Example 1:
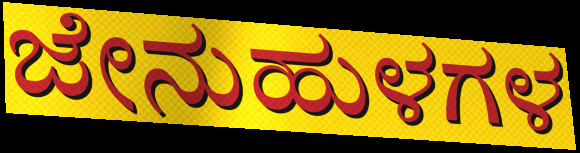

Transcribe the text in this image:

ಜೇನುಹುಳಗಳ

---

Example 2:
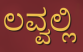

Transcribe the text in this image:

ಲವ್ವಲ್ಲಿ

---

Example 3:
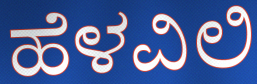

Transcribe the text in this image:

ಹೆಳವಿಲಿ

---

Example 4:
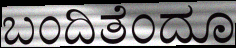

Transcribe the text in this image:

ಬಂದಿತೆಂದೂ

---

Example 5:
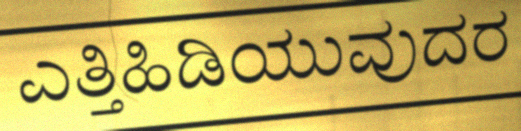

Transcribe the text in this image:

ಎತ್ತಿಹಿಡಿಯುವುದರ